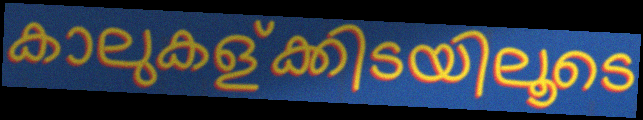
കാലുകള്ക്കിടയിലൂടെ